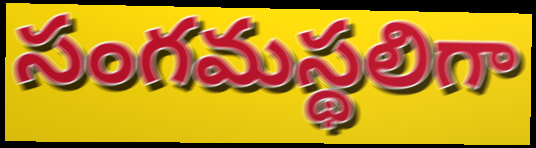
సంగమస్థలిగా